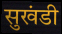
सुखंडी